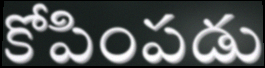
కోపింపడు